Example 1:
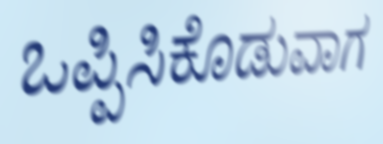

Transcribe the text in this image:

ಒಪ್ಪಿಸಿಕೊಡುವಾಗ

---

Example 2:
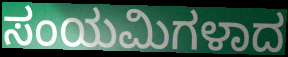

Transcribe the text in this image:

ಸಂಯಮಿಗಳಾದ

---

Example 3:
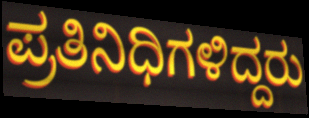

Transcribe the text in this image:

ಪ್ರತಿನಿಧಿಗಳಿದ್ದರು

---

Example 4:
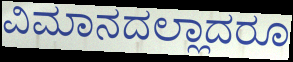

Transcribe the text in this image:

ವಿಮಾನದಲ್ಲಾದರೂ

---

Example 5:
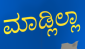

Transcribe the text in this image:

ಮಾಡ್ಲಿಲ್ಲಾ